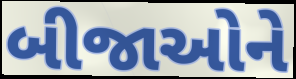
બીજાઓને